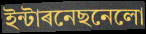
ইন্টাৰনেছনেলো